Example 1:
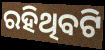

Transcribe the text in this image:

ରହିଥିବଟି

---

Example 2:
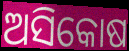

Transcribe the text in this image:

ଅସିକୋଷ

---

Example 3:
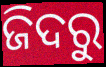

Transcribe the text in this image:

ଜିଦରୁ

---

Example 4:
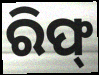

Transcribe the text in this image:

ରିଫ୍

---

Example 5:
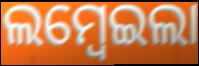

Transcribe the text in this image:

ଲମ୍ବେଇଲା